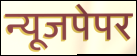
न्यूजपेपर